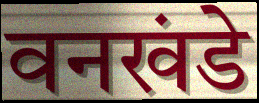
वनखंडे